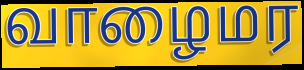
வாழைமர